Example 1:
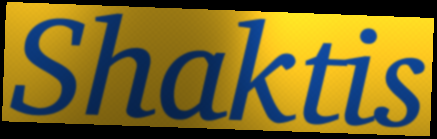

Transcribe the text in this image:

Shaktis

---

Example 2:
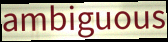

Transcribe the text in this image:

ambiguous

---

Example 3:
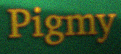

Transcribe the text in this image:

Pigmy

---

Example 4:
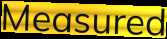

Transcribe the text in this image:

Measured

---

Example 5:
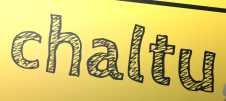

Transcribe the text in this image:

chaltu